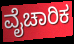
ವೈಚಾರಿಕ